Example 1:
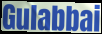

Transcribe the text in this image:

Gulabbai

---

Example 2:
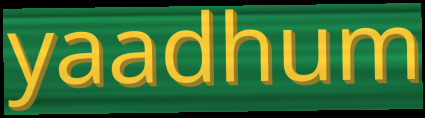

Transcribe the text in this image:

yaadhum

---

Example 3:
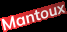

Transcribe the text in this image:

Mantoux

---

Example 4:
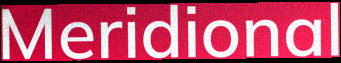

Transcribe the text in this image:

Meridional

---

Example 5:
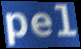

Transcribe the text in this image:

pel